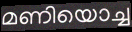
മണിയൊച്ച